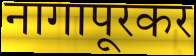
नागापूरकर